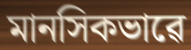
মানসিকভাৱে